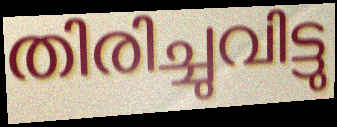
തിരിച്ചുവിട്ടു